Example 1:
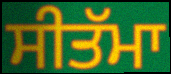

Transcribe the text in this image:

ਸੀਤੱਮਾ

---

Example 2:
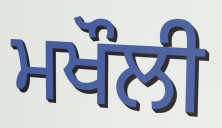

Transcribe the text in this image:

ਮਖੌਲੀ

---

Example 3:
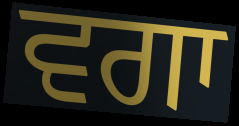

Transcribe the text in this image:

ਵਗਾ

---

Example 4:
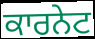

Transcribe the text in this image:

ਕਾਰਨੇਟ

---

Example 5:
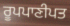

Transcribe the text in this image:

ਰੂਪਪਾਣੀਪਤ